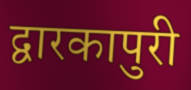
द्वारकापुरी